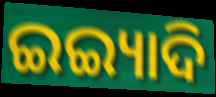
ଇଇ୍ୟାଦି